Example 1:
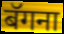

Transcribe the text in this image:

बॅगना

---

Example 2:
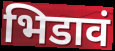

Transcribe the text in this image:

भिडावं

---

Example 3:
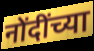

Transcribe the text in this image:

नोंदींच्या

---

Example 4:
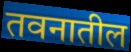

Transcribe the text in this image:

तवनातील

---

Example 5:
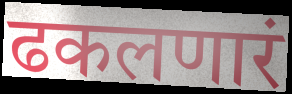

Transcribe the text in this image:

ढकलणारं